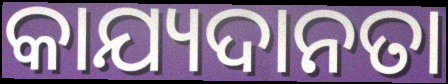
କାଯ୍ୟଦାନତା